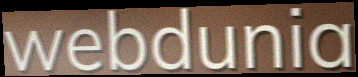
webdunia